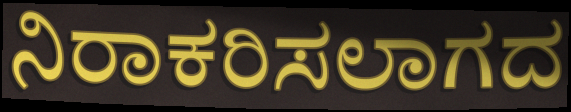
ನಿರಾಕರಿಸಲಾಗದ